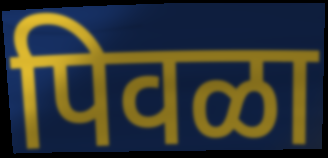
पिवळा